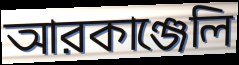
আরকাঞ্জেলি